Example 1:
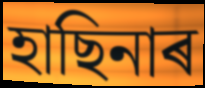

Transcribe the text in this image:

হাছিনাৰ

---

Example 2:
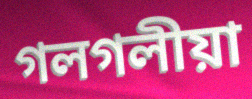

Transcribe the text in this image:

গলগলীয়া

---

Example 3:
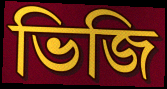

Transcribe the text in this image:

ভিজি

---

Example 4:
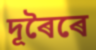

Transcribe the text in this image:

দূৰৈৰে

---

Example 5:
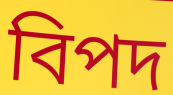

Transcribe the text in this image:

বিপদ